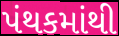
પંથકમાંથી